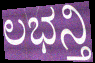
ಲಭನ್ತಿ